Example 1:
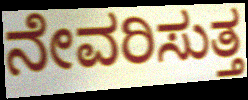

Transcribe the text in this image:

ನೇವರಿಸುತ್ತ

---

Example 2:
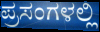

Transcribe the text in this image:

ಪ್ರಸಂಗಳಲ್ಲಿ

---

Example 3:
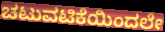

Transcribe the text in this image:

ಚಟುವಟಿಕೆಯಿಂದಲೇ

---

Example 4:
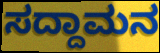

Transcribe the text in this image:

ಸದ್ದಾಮನ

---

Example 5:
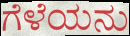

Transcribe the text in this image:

ಗೆಳೆಯನು